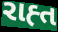
રાહ્ત